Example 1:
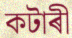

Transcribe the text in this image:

কটাৰী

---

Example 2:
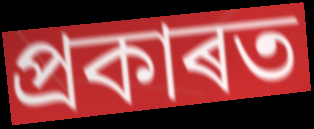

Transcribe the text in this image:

প্ৰকাৰত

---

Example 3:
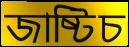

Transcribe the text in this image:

জাষ্টিচ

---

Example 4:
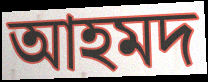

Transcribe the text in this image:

আহমদ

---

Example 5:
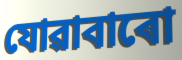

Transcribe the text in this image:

যোৱাবাৰো